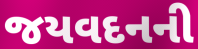
જયવદનની